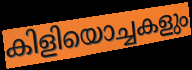
കിളിയൊച്ചകളും